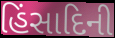
હિંસાદિની